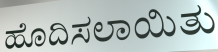
ಹೊದಿಸಲಾಯಿತು